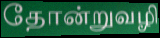
தோன்றுவழி